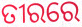
ତୀରରେ